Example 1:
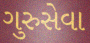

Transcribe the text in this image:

ગુરુસેવા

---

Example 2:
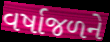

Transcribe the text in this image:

વર્ષાજળને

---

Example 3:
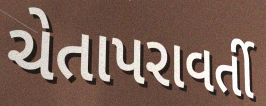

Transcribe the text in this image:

ચેતાપરાવર્તી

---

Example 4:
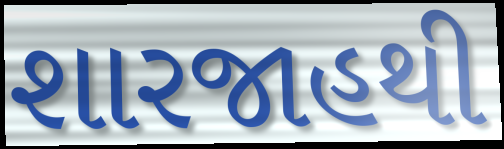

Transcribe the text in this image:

શારજાહથી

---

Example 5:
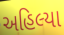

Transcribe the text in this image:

અહિલ્યા